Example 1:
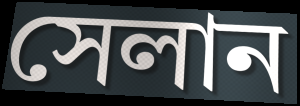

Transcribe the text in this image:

সেলান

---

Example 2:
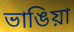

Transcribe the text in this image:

ভাঙিয়া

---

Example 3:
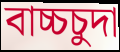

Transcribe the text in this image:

বাচ্চচুদা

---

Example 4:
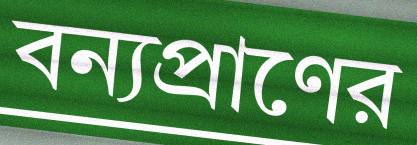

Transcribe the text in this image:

বন্যপ্রাণের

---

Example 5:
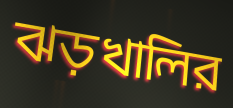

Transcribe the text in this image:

ঝড়খালির